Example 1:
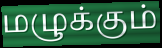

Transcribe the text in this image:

மழுக்கும்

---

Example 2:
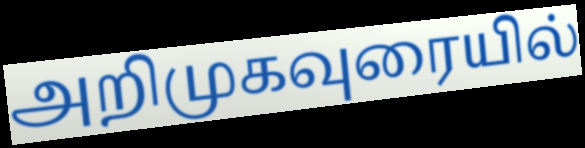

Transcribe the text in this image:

அறிமுகவுரையில்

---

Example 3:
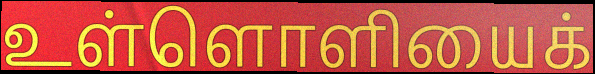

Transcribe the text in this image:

உள்ளொளியைக்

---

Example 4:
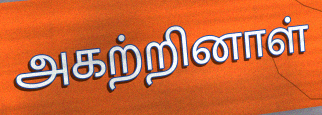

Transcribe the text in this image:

அகற்றினாள்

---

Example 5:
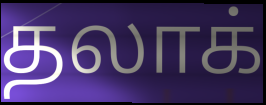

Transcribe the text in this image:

தலாக்